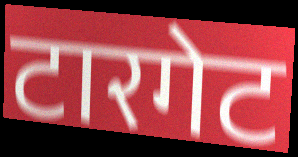
टारगेट